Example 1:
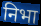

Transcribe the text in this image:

निभा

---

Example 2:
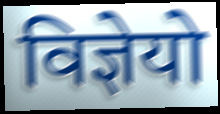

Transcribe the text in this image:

विज्ञेयो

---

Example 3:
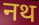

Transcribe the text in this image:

नथ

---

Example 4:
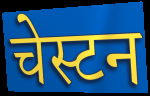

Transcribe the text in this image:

चेस्टन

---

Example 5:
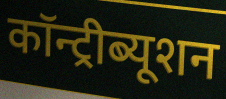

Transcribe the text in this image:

कॉन्ट्रीब्यूशन